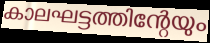
കാലഘട്ടത്തിന്റേയും